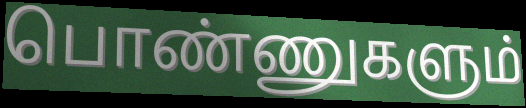
பொண்ணுகளும்